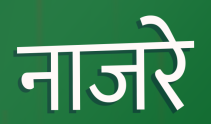
नाजरे